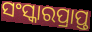
ସଂସ୍କାରପ୍ରାପ୍ତ